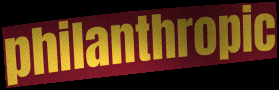
philanthropic